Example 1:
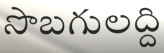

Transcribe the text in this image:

సొబగులద్ది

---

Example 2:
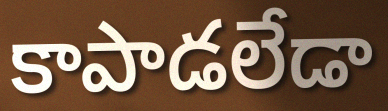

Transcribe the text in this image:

కాపాడలేడా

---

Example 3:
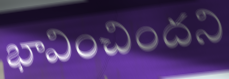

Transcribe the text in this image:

భావించిందని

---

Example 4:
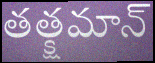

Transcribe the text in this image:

తత్క్షమాన్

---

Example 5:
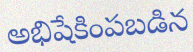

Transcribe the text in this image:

అభిషేకింపబడిన